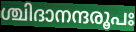
ശ്ചിദാനന്ദരൂപഃ